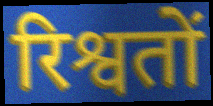
रिश्वतों